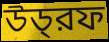
উড্‌রফ